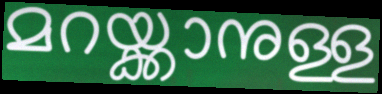
മറയ്ക്കാനുള്ള